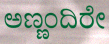
ಅಣ್ಣಂದಿರೇ